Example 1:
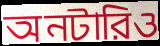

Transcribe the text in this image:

অনটারিও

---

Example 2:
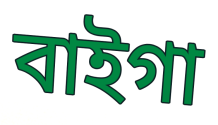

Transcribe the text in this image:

বাইগা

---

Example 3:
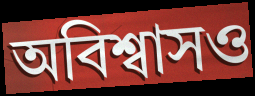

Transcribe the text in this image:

অবিশ্বাসও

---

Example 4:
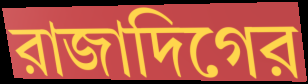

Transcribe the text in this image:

রাজাদিগের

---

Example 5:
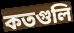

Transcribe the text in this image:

কতগুলি